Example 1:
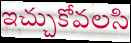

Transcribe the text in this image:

ఇచ్చుకోవలసి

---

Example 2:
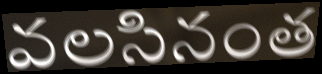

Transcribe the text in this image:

వలసినంత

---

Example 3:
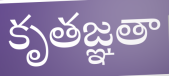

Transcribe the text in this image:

కృతజ్ఞతా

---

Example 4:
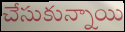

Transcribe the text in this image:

చేసుకున్నాయి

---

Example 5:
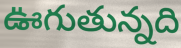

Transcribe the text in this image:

ఊగుతున్నది